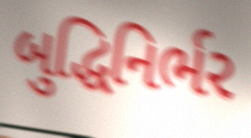
બુદ્ધિનિર્ભર